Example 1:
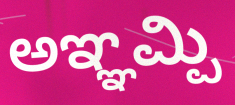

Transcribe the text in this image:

ಅಞ್ಞಮ್ಪಿ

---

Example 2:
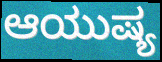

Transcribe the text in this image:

ಆಯುಷ್ಯ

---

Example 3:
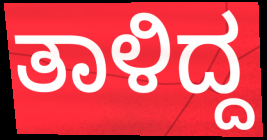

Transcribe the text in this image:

ತಾಳಿದ್ದ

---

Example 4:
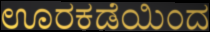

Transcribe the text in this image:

ಊರಕಡೆಯಿಂದ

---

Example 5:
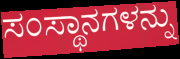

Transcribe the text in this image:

ಸಂಸ್ಥಾನಗಳನ್ನು